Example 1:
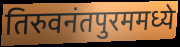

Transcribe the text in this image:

तिरुवनंतपुरममध्ये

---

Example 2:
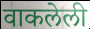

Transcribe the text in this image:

वाकलेली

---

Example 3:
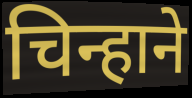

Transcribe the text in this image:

चिन्हाने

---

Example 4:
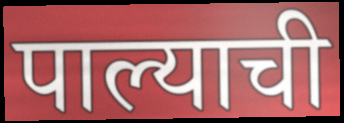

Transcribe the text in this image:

पाल्याची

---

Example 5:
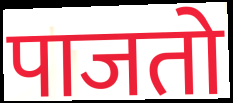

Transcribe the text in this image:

पाजतो